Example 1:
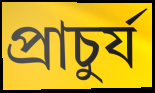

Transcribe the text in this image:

প্রাচুর্য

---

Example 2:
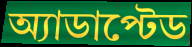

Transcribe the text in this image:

অ্যাডাপ্টেড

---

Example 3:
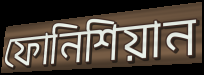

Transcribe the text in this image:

ফোনিশিয়ান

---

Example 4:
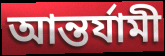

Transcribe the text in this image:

আন্তর্যামী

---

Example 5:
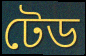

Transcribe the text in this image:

টেড